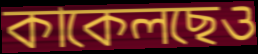
কাকেলছেও